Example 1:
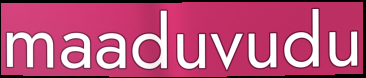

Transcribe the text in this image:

maaduvudu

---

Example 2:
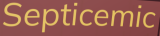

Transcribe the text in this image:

Septicemic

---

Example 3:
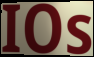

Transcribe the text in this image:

IOs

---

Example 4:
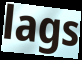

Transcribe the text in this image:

lags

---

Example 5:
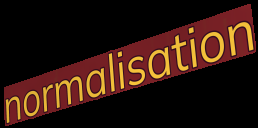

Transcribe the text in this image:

normalisation